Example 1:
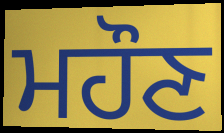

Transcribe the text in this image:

ਮਹੌਣ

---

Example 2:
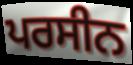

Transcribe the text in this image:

ਪਰਸੀਨ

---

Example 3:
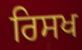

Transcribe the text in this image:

ਰਿਸਖ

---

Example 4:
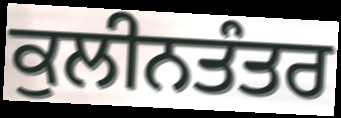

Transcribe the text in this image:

ਕੁਲੀਨਤੰਤਰ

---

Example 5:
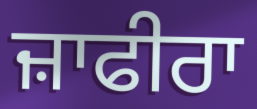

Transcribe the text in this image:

ਜ਼ਾਫੀਰਾ